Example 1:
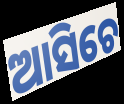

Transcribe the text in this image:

ଆସିଚେ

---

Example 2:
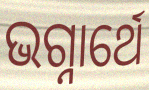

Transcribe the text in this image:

ଭଗ୍ନାର୍ଥେ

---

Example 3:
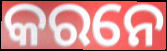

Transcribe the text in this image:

କରନେ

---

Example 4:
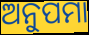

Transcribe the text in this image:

ଅନୁପମା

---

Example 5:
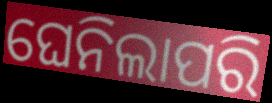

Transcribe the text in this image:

ଘେନିଲାପରି